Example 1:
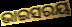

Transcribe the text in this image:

ଭାଇସରୟ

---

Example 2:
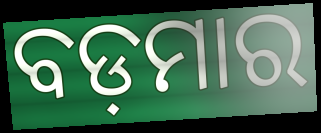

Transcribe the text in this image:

ବଡ଼ମାର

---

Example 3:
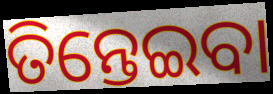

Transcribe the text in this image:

ତିନ୍ତେଇବା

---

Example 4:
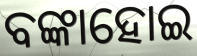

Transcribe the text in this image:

ବଙ୍କାହୋଇ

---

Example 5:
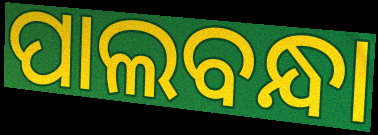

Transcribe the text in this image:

ପାଲବନ୍ଧା